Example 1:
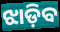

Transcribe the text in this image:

ଝାଡ଼ିବ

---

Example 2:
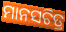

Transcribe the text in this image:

ମାନସଚିତ୍ର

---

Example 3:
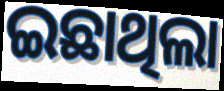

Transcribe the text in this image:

ଇଛାଥିଲା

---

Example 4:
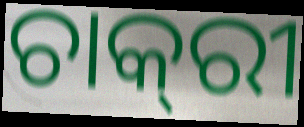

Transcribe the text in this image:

ଚାକ୍‌ରୀ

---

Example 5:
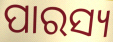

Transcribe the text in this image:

ପାରସ୍ଯ